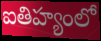
ఐతిహ్యంలో